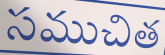
సముచిత